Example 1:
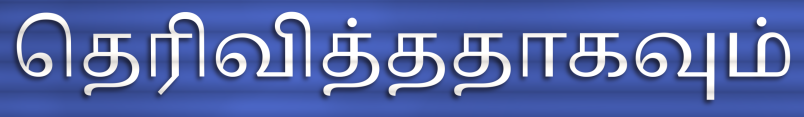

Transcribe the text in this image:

தெரிவித்ததாகவும்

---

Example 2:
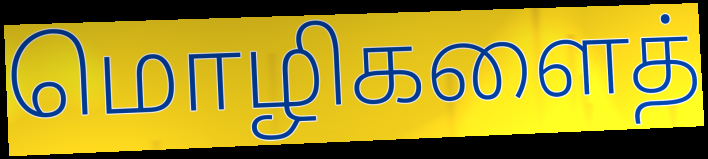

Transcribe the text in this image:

மொழிகளைத்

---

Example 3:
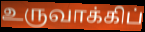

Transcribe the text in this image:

உருவாக்கிப்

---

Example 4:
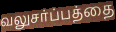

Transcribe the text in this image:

வலுசர்ப்பத்தை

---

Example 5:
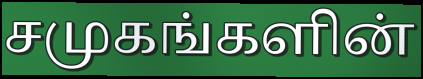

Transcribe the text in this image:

சமுகங்களின்